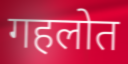
गहलोत